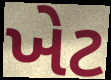
ખેટ